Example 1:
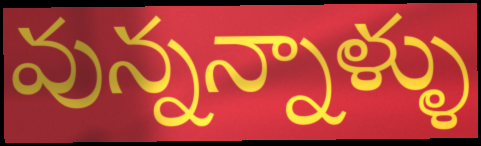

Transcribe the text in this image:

వున్నన్నాళ్ళు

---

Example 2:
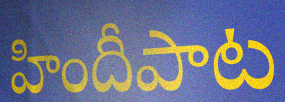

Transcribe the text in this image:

హిందీపాట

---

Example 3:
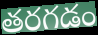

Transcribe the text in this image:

తరగడం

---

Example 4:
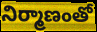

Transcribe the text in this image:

నిర్మాణంతో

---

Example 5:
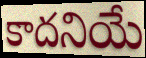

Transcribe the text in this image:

కాదనియే